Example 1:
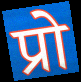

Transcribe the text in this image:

प्रो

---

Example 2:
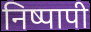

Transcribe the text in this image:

निष्पापी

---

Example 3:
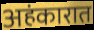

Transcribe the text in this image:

अहंकारात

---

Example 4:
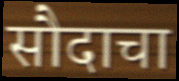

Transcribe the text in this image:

सौदाचा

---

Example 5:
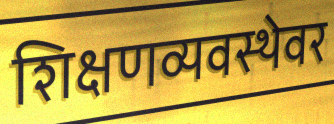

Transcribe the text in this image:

शिक्षणव्यवस्थेवर